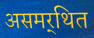
असमर्थित